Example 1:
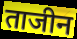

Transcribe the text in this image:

ताजीन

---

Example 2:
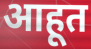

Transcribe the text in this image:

आहूत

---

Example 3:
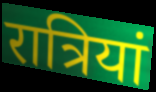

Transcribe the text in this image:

रात्रियां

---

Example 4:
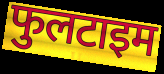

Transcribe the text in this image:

फुलटाइम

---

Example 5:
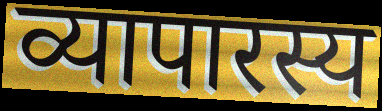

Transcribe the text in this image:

व्यापारस्य